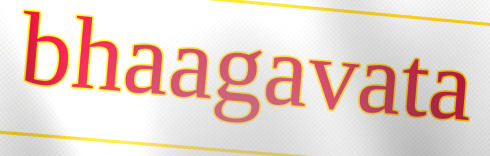
bhaagavata